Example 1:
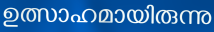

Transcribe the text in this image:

ഉത്സാഹമായിരുന്നു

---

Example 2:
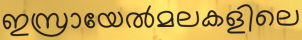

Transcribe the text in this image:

ഇസ്രായേൽമലകളിലെ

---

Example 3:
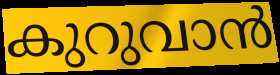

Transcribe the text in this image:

കുറുവാൻ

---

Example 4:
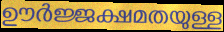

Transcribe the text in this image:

ഊർജ്ജക്ഷമതയുള്ള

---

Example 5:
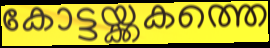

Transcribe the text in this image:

കോട്ടയ്ക്കകത്തെ